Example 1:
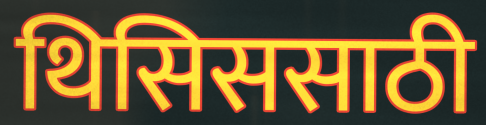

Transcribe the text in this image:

थिसिससाठी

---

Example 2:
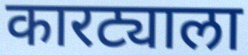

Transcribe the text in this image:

कारट्याला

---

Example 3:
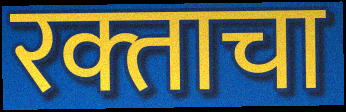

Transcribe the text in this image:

रक्‍ताचा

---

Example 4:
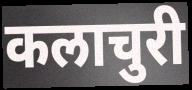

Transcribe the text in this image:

कलाचुरी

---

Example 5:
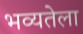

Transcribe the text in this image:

भव्यतेला